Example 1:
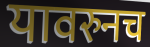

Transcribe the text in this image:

यावरुनच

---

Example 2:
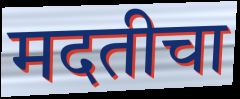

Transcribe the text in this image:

मदतीचा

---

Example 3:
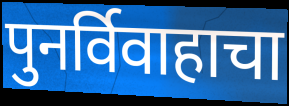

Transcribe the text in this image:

पुनर्विवाहाचा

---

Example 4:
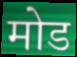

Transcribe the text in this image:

मोड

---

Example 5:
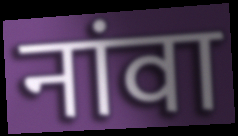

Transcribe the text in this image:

नांवा